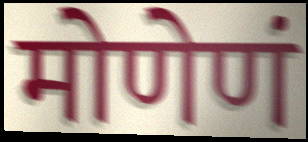
मोणेणं